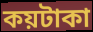
কয়টাকা